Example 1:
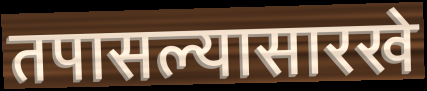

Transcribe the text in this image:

तपासल्यासारखे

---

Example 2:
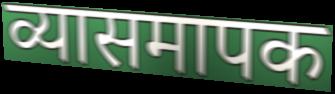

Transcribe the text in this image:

व्यासमापक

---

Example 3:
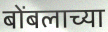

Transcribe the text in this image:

बोंबलाच्या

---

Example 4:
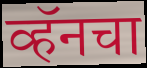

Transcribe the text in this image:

व्हॅनचा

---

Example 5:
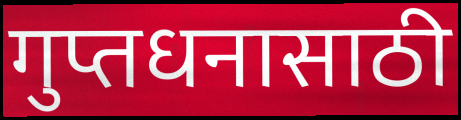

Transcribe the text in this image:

गुप्तधनासाठी